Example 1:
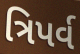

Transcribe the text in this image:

ત્રિપર્વ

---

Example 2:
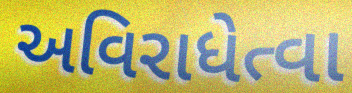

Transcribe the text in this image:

અવિરાધેત્વા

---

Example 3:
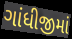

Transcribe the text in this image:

ગાંધીજીમાં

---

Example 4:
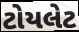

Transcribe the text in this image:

ટોયલેટ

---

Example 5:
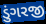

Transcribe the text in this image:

ડુંગરજી